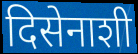
दिसेनाशी